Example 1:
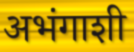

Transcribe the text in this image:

अभंगाशी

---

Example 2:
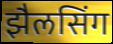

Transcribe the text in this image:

झैलसिंग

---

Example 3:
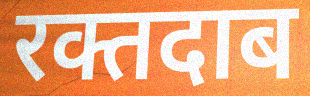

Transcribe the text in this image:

रक्तदाब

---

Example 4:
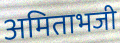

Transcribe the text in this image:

अमिताभजी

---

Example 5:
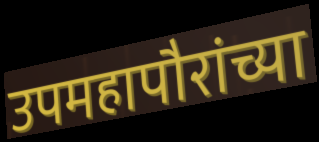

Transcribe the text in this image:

उपमहापौरांच्या